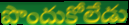
పొందుకోలేడు